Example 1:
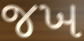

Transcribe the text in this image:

જખ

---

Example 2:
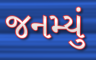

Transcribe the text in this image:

જનમ્યું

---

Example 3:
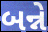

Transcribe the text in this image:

બન્ને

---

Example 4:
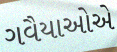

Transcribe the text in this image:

ગવૈયાઓએ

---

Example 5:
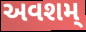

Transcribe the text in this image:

અવશમ્